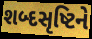
શબ્દસૃષ્ટિને